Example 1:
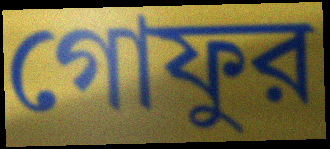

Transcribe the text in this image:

গোফুর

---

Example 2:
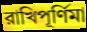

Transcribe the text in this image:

রাখিপূর্ণিমা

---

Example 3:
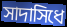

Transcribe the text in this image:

সাদাসিধে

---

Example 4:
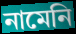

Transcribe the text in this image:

নামেনি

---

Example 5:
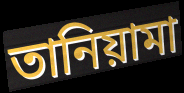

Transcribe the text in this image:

তানিয়ামা